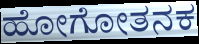
ಹೋಗೋತನಕ